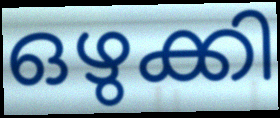
ഒഴുക്കി